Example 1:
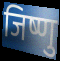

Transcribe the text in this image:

जिष्णु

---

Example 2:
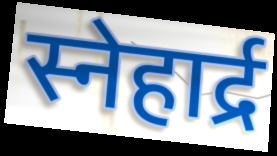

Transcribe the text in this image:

स्नेहार्द्र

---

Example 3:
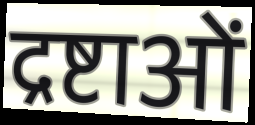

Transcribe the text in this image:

द्रष्टाओं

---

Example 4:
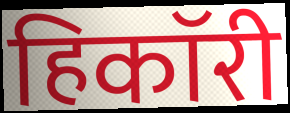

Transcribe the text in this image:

हिकॉरी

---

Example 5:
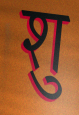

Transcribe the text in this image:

शु